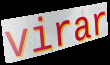
virar